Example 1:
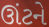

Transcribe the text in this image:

ઊંટને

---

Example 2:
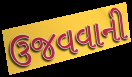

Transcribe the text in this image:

ઉજવવાની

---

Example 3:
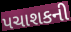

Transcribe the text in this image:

પચાશકની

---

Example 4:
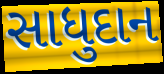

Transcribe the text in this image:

સાધુદાન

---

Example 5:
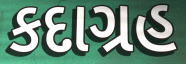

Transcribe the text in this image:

કદાગ્રહ